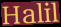
Halil